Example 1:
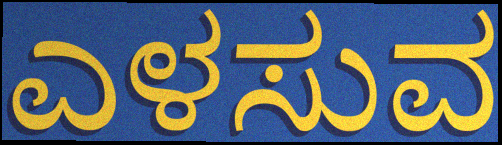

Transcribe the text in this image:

ಎಳಸುವ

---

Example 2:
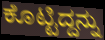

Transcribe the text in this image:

ಕೊಟ್ಟಿದ್ದನ್ನು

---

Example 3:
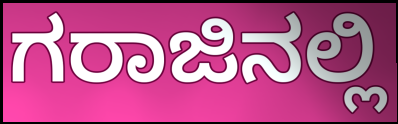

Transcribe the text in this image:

ಗರಾಜಿನಲ್ಲಿ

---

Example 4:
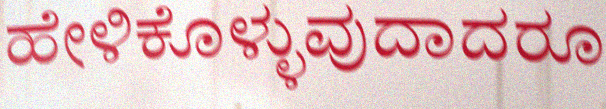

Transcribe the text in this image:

ಹೇಳಿಕೊಳ್ಳುವುದಾದರೂ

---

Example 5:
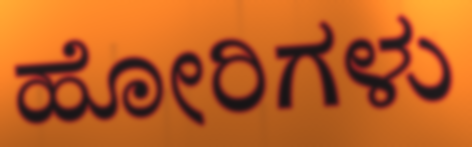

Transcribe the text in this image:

ಹೋರಿಗಳು